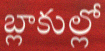
బ్లాకుల్లో